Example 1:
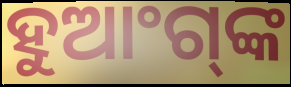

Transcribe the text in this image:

ହୁଆଂଗ୍‍ଙ୍କ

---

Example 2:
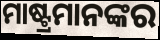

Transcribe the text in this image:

ମାଷ୍ଟ୍ରମାନଙ୍କର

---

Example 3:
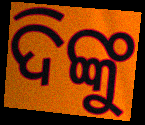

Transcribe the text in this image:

ଦିଙ୍କୁ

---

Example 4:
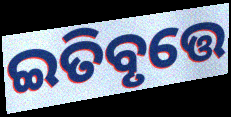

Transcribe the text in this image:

ଇତିବୃତ୍ତେ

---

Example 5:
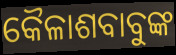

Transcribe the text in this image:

କୈଳାଶବାବୁଙ୍କ